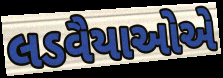
લડવૈયાઓએ